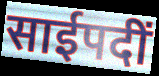
साईपदीं